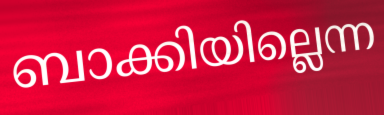
ബാക്കിയില്ലെന്ന